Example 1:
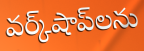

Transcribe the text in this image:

వర్క్‌షాప్‌లను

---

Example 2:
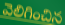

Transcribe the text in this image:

వెలిగించిన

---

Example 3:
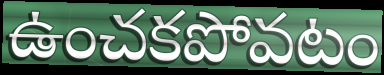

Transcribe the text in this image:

ఉంచకపోవటం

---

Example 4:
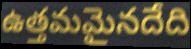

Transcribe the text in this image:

ఉత్తమమైనదేది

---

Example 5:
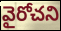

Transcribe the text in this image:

వైరోచని